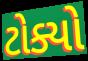
ટોક્યો